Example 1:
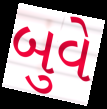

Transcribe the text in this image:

બુવે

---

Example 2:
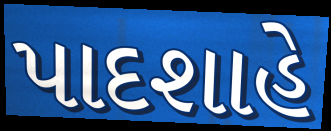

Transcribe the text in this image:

પાદશાહે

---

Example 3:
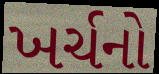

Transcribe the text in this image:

ખર્ચનો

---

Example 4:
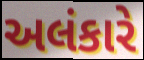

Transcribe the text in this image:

અલંકારે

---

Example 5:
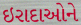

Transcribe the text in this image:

ઇરાદાઓને